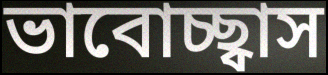
ভাবোচ্ছ্বাস